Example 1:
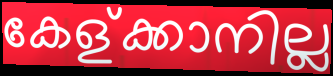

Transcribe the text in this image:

കേള്ക്കാനില്ല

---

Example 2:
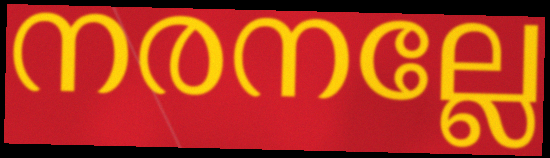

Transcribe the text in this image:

നരനല്ലേ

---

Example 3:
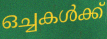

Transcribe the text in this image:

ഒച്ചകൾക്ക്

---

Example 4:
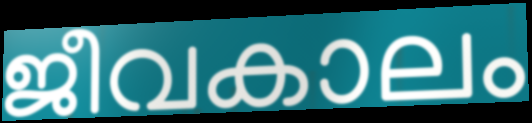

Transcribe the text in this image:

ജീവകാലം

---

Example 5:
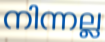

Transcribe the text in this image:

നിന്നല്ല